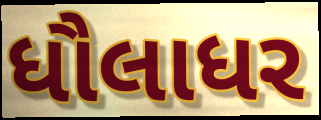
ધૌલાધર